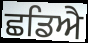
ਛਡਿਐ